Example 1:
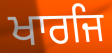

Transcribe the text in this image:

ਖਾਰਜਿ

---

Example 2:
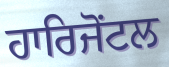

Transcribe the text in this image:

ਹਾਰਿਜੋਂਟਲ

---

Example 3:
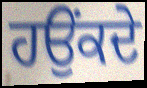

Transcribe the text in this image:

ਹਉਂਕਦੇ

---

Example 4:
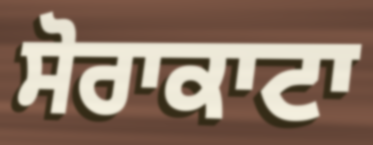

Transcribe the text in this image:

ਸੋਰਾਕਾਟਾ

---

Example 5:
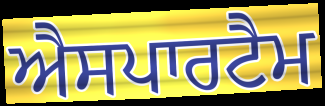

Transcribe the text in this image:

ਐਸਪਾਰਟੈਮ